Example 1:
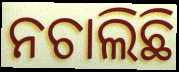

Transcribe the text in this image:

ନଚାଲିଛି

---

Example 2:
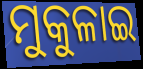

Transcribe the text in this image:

ମୁକୁଳାଇ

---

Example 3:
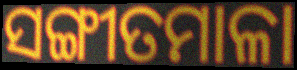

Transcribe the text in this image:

ସଙ୍ଗୀତମାଳା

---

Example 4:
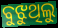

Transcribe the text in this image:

ବୁଝୁଥିଲୁ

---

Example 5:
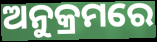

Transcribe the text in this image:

ଅନୁକ୍ରମରେ